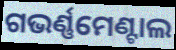
ଗଭର୍ଣ୍ଣମେଣ୍ଟାଲ